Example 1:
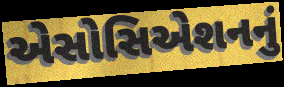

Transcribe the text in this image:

એસોસિએશનનું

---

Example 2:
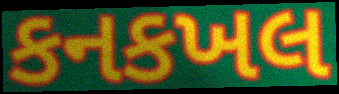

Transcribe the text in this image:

કનકખલ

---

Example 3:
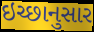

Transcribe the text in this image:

ઇચ્છાનુસાર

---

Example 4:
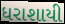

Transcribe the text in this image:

ધરાશાયી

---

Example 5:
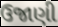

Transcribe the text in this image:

ઉજાણી